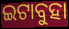
ଇଟାବୁହା